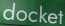
docket